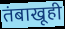
तंबाखूही